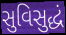
સુવિસુદ્ધં